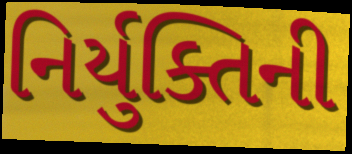
નિર્યુક્તિની